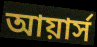
আয়ার্স